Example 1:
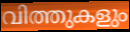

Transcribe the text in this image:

വിത്തുകളും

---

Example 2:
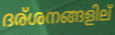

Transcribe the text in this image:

ദര്ശനങ്ങളില്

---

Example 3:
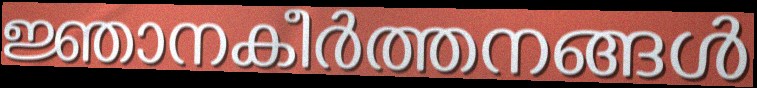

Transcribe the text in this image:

ജ്ഞാനകീർത്തനങ്ങൾ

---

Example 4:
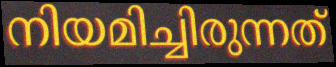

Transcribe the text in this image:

നിയമിച്ചിരുന്നത്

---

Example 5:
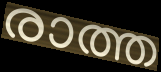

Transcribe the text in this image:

രാത്ത